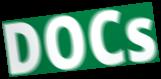
DOCs